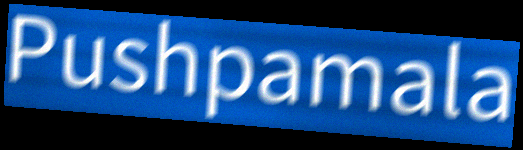
Pushpamala